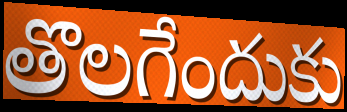
తొలగేందుకు